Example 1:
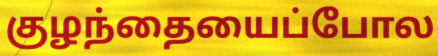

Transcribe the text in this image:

குழந்தையைப்போல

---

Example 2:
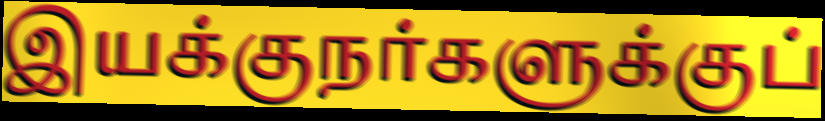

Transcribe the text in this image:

இயக்குநர்களுக்குப்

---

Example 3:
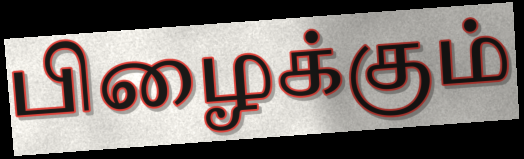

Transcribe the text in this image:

பிழைக்கும்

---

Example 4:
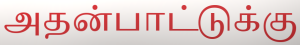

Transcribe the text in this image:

அதன்பாட்டுக்கு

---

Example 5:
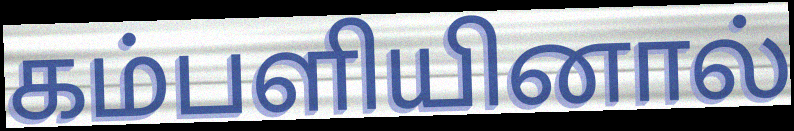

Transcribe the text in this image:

கம்பளியினால்